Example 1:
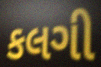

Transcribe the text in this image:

કલગી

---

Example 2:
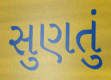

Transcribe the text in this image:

સુણતું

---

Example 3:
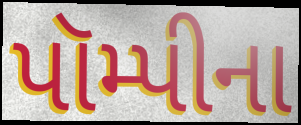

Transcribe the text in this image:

પૉમ્પીના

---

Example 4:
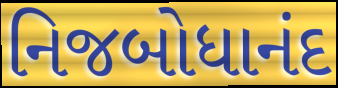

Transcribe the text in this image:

નિજબોધાનંદ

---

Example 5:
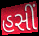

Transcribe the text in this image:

હસીં